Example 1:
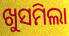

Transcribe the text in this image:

ଖୁସମିଲା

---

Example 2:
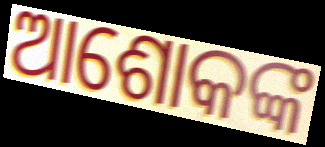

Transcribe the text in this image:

ଆଶୋକଙ୍କ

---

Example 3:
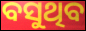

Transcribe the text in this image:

ବସୁଥିବ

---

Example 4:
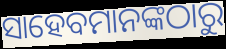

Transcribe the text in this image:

ସାହେବମାନଙ୍କଠାରୁ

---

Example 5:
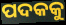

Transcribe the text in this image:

ପଦକକୁ